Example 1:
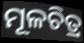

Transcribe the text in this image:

ମୂଳଚିତ୍ର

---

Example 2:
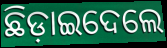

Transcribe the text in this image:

ଛିଡ଼ାଇଦେଲେ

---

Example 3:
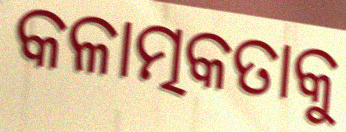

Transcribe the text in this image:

କଳାତ୍ମକତାକୁ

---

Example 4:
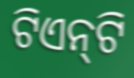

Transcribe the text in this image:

ଟିଏନ୍‌ଟି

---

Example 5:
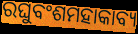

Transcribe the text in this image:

ରଘୁବଂଶମହାକାବ୍ୟ